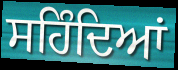
ਸਹਿੰਦਿਆਂ